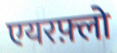
एयरफ़्लो